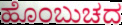
ಹೊಂಬುಚದ